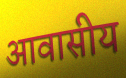
आवासीय